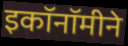
इकॉनॉमीने